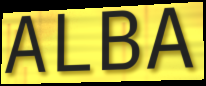
ALBA